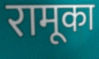
रामूका